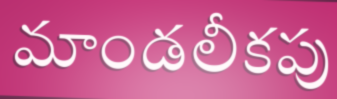
మాండలీకపు